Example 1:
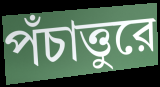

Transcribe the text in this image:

পঁচাত্তুরে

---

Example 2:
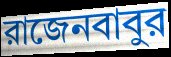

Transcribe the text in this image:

রাজেনবাবুর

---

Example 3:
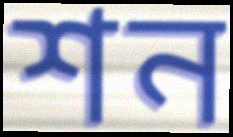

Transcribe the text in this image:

শন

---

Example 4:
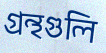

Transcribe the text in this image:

গ্রন্থগুলি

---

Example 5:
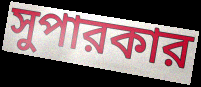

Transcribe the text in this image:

সুপারকার